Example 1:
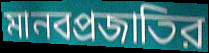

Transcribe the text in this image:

মানবপ্রজাতির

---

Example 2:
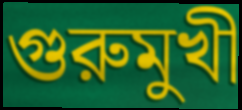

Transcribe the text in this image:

গুরুমুখী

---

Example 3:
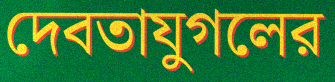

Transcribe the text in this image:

দেবতাযুগলের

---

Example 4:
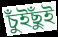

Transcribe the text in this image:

চুঁইছুঁই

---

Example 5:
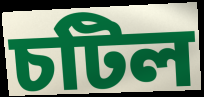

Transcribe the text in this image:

চটিল